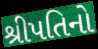
શ્રીપતિનો